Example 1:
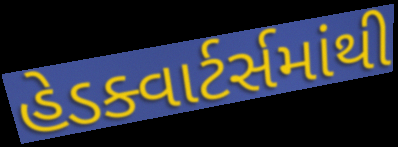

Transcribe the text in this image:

હેડક્વાર્ટર્સમાંથી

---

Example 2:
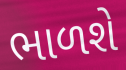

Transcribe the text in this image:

ભાળશે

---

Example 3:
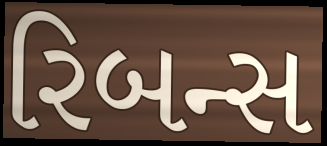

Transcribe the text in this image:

રિબન્સ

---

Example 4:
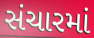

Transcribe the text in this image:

સંચારમાં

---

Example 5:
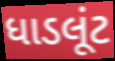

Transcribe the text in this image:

ધાડલૂંટ